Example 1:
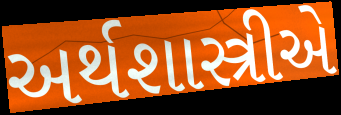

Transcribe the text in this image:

અર્થશાસ્ત્રીએ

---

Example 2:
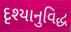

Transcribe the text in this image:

દૃશ્યાનુવિદ્ધ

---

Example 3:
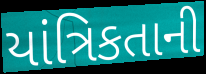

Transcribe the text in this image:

યાંત્રિકતાની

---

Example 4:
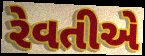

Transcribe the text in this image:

રેવતીએ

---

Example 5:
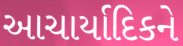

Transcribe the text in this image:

આચાર્યાદિકને